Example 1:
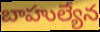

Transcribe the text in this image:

బాహుల్యేన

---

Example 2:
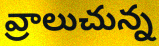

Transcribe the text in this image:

వ్రాలుచున్న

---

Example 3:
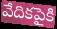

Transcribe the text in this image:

వేదికపైకి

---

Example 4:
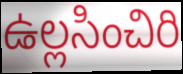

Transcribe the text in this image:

ఉల్లసించిరి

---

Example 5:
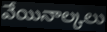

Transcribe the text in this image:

వేయినాల్కలు